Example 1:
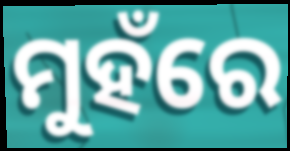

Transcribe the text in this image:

ମୁହଁରେ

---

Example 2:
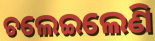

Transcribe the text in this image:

ଚଲେଇଲେଣି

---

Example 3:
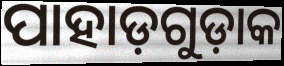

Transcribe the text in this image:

ପାହାଡ଼ଗୁଡ଼ାକ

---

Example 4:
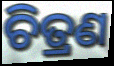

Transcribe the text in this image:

ଚିତ୍ରଣ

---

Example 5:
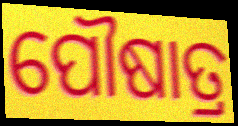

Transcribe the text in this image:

ପୌଷାତ୍ର